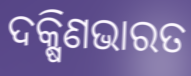
ଦକ୍ଷିଣଭାରତ